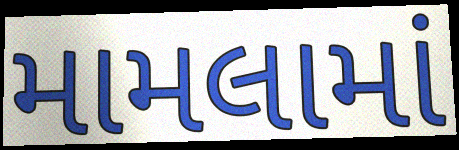
મામલામાં